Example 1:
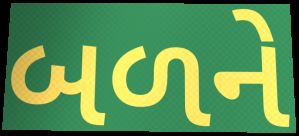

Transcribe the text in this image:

બળને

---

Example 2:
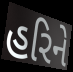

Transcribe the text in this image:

હરિને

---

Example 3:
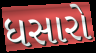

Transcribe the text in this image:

ધસારો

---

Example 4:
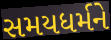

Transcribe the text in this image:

સમયધર્મને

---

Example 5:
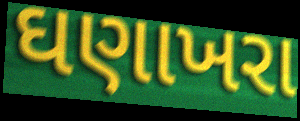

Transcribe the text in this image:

ઘણાખરા